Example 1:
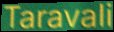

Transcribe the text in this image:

Taravali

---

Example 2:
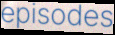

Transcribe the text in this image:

episodes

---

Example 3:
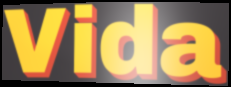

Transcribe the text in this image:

Vida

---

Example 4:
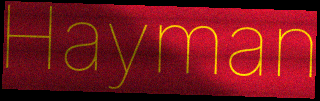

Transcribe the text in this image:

Hayman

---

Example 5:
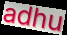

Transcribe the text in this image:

adhu